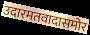
उदारमतवादासमोर